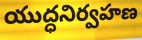
యుద్ధనిర్వహణ